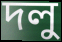
দলু